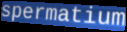
spermatium